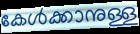
കേൾക്കാനുള്ള